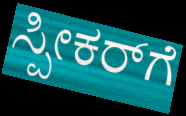
ಸ್ಪೀಕರ್‌ಗೆ